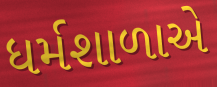
ધર્મશાળાએ